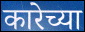
कारेच्या